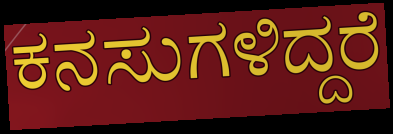
ಕನಸುಗಳಿದ್ದರೆ